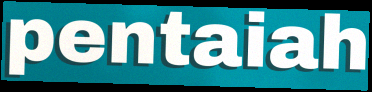
pentaiah